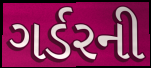
ગર્ડરની